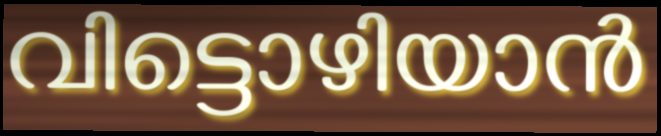
വിട്ടൊഴിയാൻ